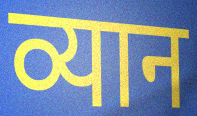
व्यान